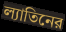
ল্যাতিনের